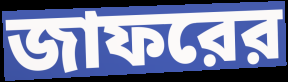
জাফরের